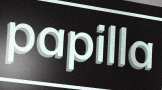
papilla